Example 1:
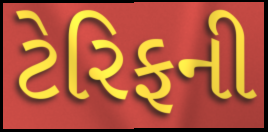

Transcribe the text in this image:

ટેરિફની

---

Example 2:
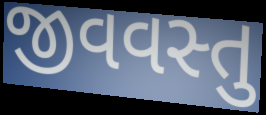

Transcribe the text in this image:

જીવવસ્તુ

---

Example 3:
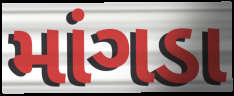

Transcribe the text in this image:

માંગડા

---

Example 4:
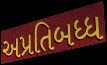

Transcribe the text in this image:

અપ્રતિબધ્ધ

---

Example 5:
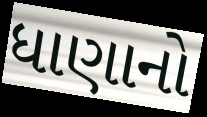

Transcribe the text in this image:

ધાણાનો